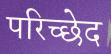
परिच्छेद